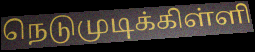
நெடுமுடிக்கிள்ளி